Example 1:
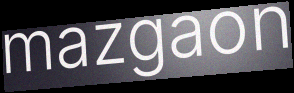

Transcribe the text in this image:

mazgaon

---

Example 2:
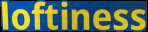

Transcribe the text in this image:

loftiness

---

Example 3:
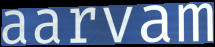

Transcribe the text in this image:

aarvam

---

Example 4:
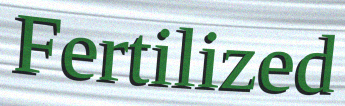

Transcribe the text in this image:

Fertilized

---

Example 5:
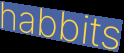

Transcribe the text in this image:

habbits